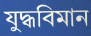
যুদ্ধবিমান